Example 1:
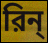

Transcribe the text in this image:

রিন্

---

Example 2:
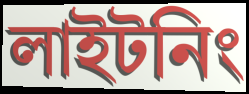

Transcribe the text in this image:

লাইটনিং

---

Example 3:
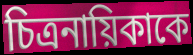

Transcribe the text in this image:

চিত্রনায়িকাকে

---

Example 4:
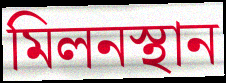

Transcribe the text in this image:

মিলনস্থান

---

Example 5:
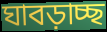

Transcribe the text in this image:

ঘাবড়াচ্ছ